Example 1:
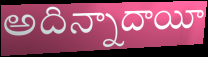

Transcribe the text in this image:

అదిన్నాదాయీ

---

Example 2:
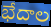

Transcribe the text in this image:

భేదాల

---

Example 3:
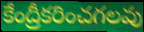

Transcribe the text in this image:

కేంద్రీకరించగలవు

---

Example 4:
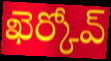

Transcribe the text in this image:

ఖెర్కోవ్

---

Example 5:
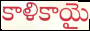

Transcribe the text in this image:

కాళికాయై